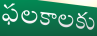
ఫలకాలకు